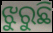
ଝୁରୁଛି